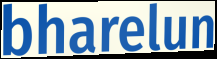
bharelun